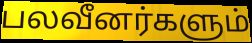
பலவீனர்களும்